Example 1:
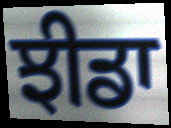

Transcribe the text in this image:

ਝੀਡਾ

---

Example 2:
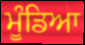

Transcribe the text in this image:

ਮੂੰਡਿਆ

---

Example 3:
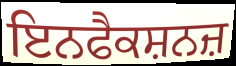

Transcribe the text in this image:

ਇਨਫੈਕਸ਼ਨਜ਼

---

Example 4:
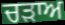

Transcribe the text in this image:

ਚੜਾਅ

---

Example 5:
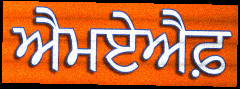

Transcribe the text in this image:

ਐਮਏਐਫ਼